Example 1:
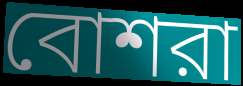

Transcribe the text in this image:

বোশরা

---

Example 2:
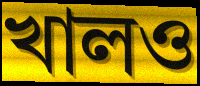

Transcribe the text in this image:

খালও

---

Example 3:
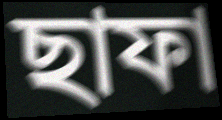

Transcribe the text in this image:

ছাফা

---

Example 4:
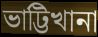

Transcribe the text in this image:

ভাট্টিখানা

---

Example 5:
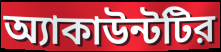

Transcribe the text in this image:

অ্যাকাউন্টটির